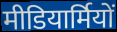
मीडियार्मियों